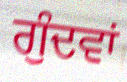
ਗੁੰਦਵਾਂ